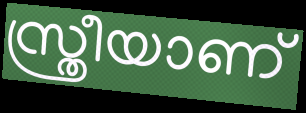
സ്ത്രീയാണ്